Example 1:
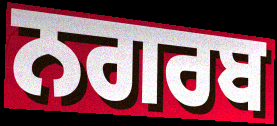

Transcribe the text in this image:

ਨਗਰਬ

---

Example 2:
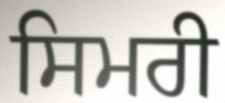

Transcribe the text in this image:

ਸਿਮਰੀ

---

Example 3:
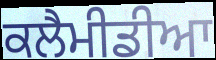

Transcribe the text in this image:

ਕਲੈਮੀਡੀਆ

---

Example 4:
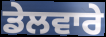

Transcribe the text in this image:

ਡੇਲਵਾਰੇ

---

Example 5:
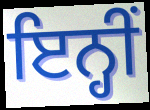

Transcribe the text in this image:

ਇਨ੍ਹੀਂ